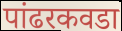
पांढरकवडा